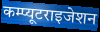
कम्प्यूटराइजेशन